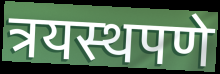
त्रयस्थपणे